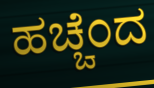
ಹಚ್ಚೆಂದ